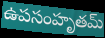
ఉపసంహృతమ్